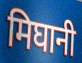
मिघानी